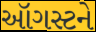
ઑગસ્ટને